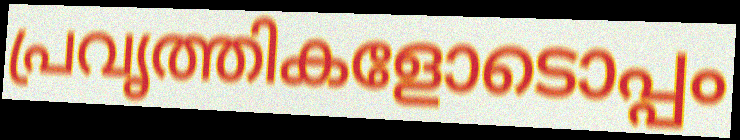
പ്രവൃത്തികളോടൊപ്പം